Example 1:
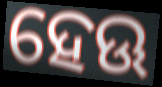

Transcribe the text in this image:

ହେଊ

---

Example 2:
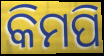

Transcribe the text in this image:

କିମପି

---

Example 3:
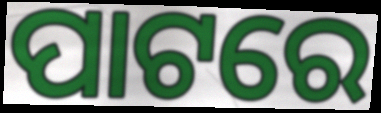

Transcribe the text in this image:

ପାଟରେ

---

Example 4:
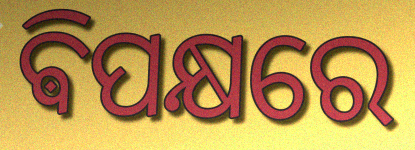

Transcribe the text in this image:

ଵିପକ୍ଷରେ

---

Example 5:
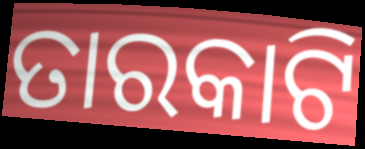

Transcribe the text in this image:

ତାରକାଟି